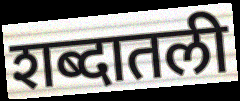
शब्दातली